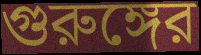
গুরুঙ্গের